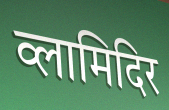
व्लामिदिर